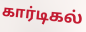
கார்டிகல்